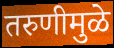
तरुणीमुळे